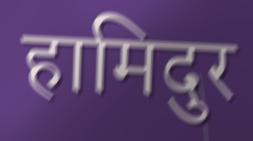
हामिदुर